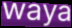
waya